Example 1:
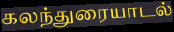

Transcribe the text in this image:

கலந்துரையாடல்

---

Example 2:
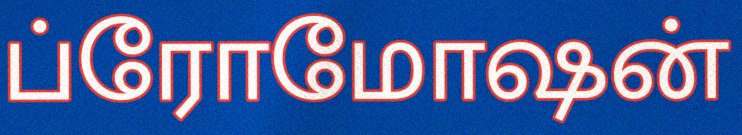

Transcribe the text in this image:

ப்ரோமோஷன்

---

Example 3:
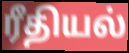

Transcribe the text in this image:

ரீதியல்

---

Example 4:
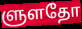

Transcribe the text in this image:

ளுளதோ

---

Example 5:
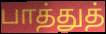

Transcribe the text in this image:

பாத்துத்